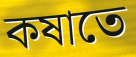
কষাতে